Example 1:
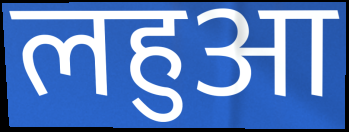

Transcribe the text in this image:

लहुआ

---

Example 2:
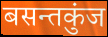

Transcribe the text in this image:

बसन्तकुंज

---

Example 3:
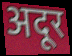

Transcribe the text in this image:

अदूर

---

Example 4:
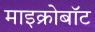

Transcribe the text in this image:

माइक्रोबॉट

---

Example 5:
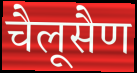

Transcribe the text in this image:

चैलूसैण